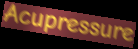
Acupressure